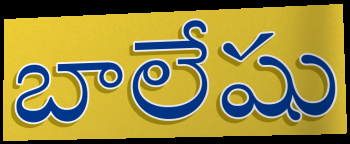
బాలేషు